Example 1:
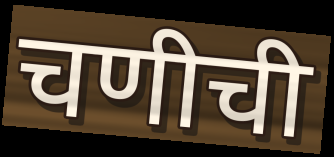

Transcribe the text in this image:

चणीची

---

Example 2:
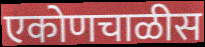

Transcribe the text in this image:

एकोणचाळीस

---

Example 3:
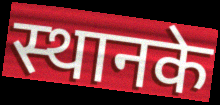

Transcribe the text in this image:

स्थानके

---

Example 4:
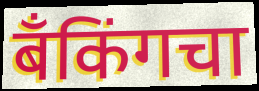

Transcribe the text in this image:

बँकिंगचा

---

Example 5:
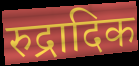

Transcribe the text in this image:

रुद्रादिक